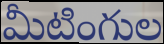
మీటింగుల